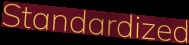
Standardized